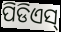
ପିଡିଏସ୍